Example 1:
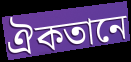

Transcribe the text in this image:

ঐকতানে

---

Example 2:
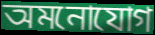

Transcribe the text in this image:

অমনোযোগ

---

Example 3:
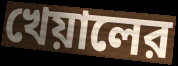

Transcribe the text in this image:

খেয়ালের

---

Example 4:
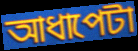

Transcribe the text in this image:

আধাপেটা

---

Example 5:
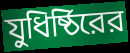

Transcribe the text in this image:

যুধিষ্ঠিরের